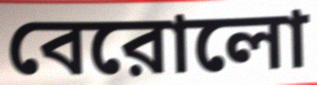
বেরোলো